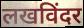
लखविंदर